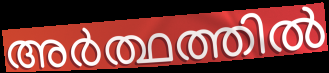
അർത്ഥത്തിൽ